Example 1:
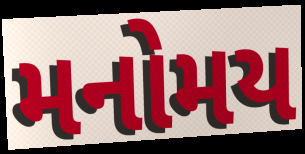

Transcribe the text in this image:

મનોમય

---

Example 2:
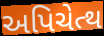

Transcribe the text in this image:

અપિચેત્થ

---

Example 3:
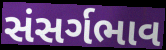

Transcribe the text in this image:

સંસર્ગભાવ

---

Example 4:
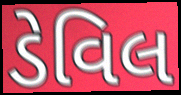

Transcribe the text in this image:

ડેવિલ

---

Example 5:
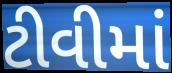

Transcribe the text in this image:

ટીવીમાં